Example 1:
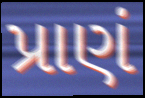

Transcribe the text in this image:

પ્રાણં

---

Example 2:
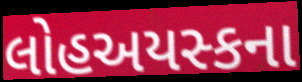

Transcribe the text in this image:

લોહઅયસ્કના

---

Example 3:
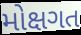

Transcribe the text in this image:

મોક્ષગત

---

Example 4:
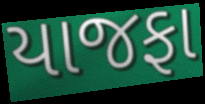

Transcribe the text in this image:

યાજફા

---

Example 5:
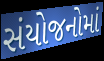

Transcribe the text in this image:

સંયોજનોમાં